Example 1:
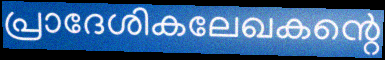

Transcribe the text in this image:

പ്രാദേശികലേഖകന്റെ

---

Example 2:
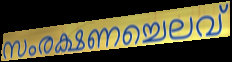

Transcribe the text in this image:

സംരക്ഷണച്ചെലവ്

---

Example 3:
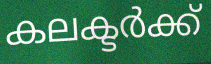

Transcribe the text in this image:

കലക്ടർക്ക്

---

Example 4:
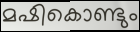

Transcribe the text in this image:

മഷികൊണ്ടും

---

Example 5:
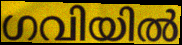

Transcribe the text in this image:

ഗവിയിൽ